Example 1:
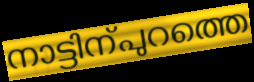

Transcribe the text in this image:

നാട്ടിന്പുറത്തെ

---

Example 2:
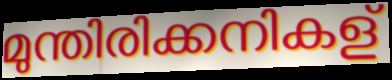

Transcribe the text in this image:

മുന്തിരിക്കനികള്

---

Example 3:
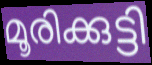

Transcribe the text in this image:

മൂരിക്കുട്ടി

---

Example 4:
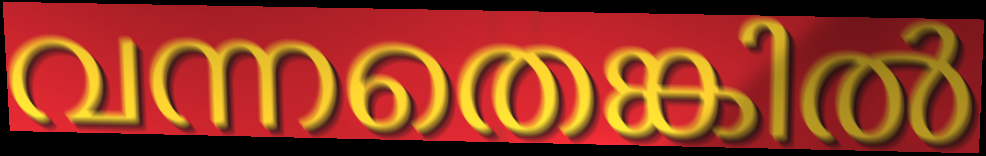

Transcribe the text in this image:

വന്നതെങ്കിൽ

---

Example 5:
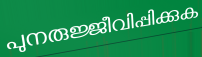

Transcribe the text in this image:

പുനരുജ്ജീവിപ്പിക്കുക